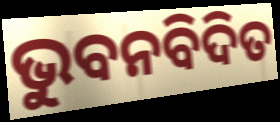
ଭୁବନବିଦିତ